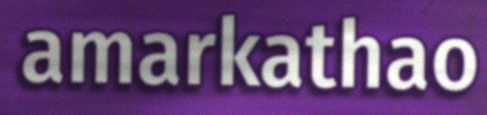
amarkathao